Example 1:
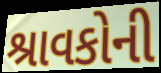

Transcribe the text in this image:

શ્રાવકોની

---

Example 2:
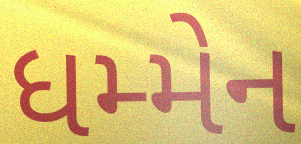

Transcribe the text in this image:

ધમ્મેન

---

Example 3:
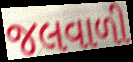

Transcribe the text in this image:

જલવાળી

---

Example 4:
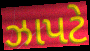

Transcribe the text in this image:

ઝાપટે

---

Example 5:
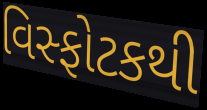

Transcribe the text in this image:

વિસ્ફોટકથી